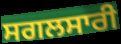
ਸਗਲਸਾਰੀ